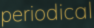
periodical